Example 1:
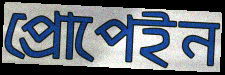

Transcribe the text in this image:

প্রোপেইন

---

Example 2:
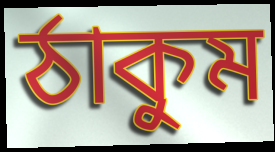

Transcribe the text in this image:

ঠাকুম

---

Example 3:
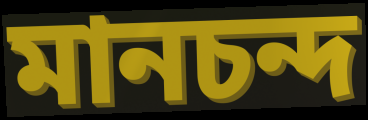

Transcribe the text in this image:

মানচন্দ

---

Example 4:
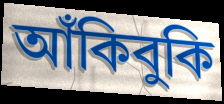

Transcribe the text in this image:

আঁকিবুকি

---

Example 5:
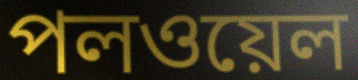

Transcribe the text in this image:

পলওয়েল